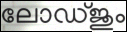
ലോഡ്ജും